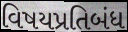
વિષયપ્રતિબંધ